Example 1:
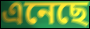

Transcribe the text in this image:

এনেছে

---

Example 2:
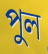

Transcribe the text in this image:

পুল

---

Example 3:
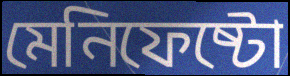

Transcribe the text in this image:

মেনিফেষ্টো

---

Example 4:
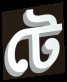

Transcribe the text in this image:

টে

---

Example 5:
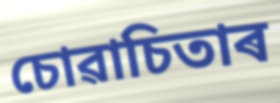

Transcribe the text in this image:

চোৱাচিতাৰ